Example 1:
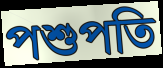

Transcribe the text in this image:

পশুপতি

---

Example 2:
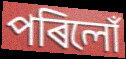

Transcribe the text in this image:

পৰিলোঁ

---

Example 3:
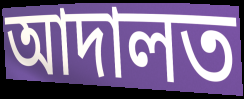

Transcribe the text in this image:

আদালত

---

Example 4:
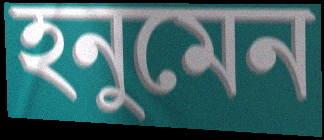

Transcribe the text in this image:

হনুমেন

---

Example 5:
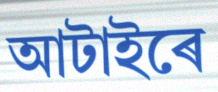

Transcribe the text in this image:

আটাইৰে